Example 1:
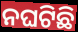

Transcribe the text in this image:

ନଘଟିଛି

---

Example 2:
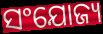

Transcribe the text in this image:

ସଂଯୋଜ୍ୟ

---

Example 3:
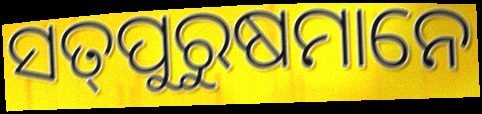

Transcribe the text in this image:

ସତ୍‌ପୁରୁଷମାନେ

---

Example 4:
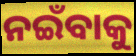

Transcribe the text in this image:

ନଇଁବାକୁ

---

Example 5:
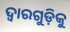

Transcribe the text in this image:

ଦ୍ୱାରଗୁଡ଼ିକୁ